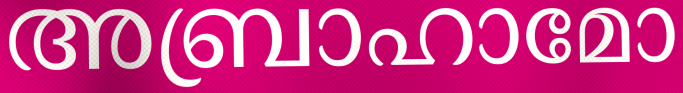
അബ്രാഹാമോ